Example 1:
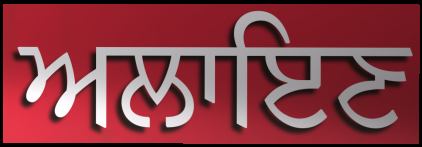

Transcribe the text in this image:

ਅਲਾਇਣ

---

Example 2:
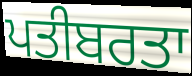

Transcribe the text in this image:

ਪਤੀਬਰਤਾ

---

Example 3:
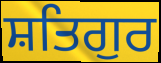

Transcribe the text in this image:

ਸ਼ਤਿਗੁਰ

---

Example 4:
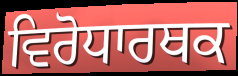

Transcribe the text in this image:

ਵਿਰੋਧਾਰਥਕ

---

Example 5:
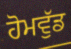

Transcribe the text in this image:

ਹੋਮਵੁੱਡ